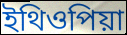
ইথিওপিয়া